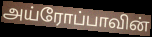
அய்ரோப்பாவின்